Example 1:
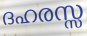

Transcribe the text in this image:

ദഹരസ്സ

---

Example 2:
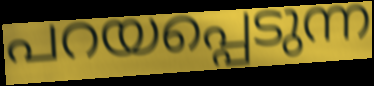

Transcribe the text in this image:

പറയപ്പെടുന്ന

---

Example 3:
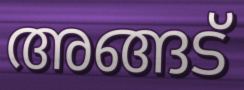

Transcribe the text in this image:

അങ്ങട്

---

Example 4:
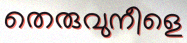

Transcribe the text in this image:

തെരുവുനീളെ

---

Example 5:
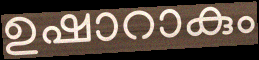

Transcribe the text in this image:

ഉഷാറാകും